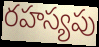
రహస్యపు